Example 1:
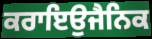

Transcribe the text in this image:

ਕਰਾਇਉਜੈਨਿਕ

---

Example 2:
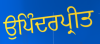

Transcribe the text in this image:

ਉਪਿੰਦਰਪ੍ਰੀਤ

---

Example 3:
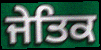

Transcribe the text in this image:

ਜੇਤਿਕ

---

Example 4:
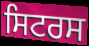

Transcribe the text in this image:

ਸਿਟਰਸ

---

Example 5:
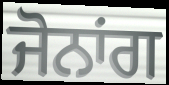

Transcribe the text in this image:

ਜੋਨਾਂਗ